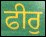
ਫੀਰੁ